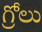
గ్రోలు